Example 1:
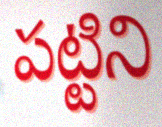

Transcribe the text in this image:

పట్టిని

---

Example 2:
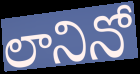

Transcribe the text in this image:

లానినో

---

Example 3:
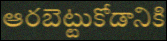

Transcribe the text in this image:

ఆరబెట్టుకోడానికి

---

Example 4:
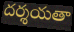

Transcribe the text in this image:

దర్శయతా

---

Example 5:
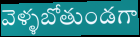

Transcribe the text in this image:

వెళ్ళబోతుండగా